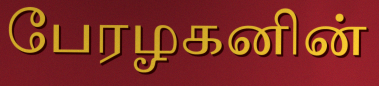
பேரழகனின்